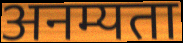
अनम्यता